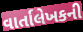
વાર્તાલેખકની